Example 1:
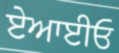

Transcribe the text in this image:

ਏਆਈਓ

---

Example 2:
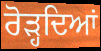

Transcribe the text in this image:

ਰੋੜ੍ਹਦਿਆਂ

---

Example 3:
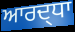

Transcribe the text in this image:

ਆਰਦ੍ਧਾ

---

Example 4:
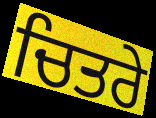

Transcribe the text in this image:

ਚਿਤਰੇ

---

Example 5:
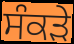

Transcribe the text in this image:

ਸੰਕੜੇ